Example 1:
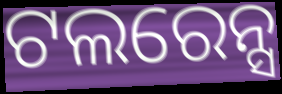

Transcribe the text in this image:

ଟଲରେନ୍ସ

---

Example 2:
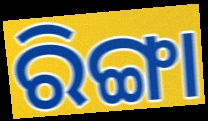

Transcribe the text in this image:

ରିଙ୍ଗା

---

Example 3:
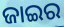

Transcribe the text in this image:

ଜାଇର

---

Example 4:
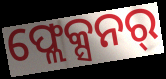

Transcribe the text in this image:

ଫ୍ଲେକ୍ସନର୍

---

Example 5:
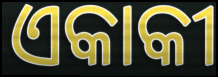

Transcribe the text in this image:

ଏକାକୀ